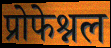
प्रोफेश्नल